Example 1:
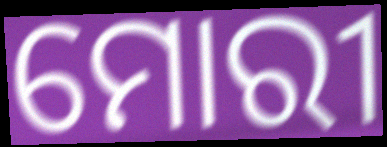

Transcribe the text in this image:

ମୋରୀ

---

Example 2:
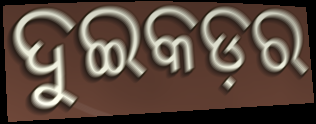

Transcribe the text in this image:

ଦୁଇକଡ଼ର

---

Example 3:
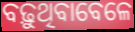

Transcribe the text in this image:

ବଢ଼ୁଥିବାବେଳେ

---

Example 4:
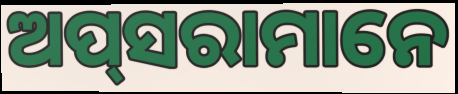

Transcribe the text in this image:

ଅପ୍‍ସରାମାନେ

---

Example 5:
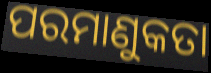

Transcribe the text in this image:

ପରମାଣୁକତା